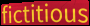
fictitious